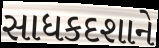
સાધકદશાને